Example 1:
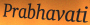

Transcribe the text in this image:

Prabhavati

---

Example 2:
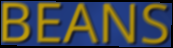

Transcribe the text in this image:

BEANS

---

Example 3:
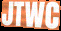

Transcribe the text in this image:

JTWC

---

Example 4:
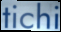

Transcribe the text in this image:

tichi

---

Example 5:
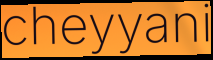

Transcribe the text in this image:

cheyyani